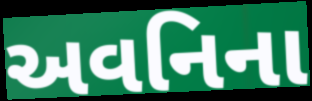
અવનિના